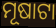
ମୂଷାଟା